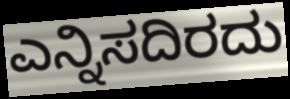
ಎನ್ನಿಸದಿರದು